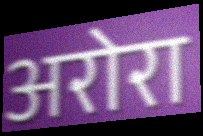
अरोरा